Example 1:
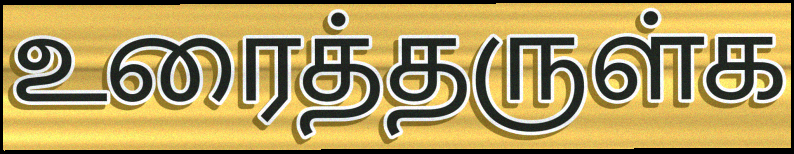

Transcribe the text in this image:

உரைத்தருள்க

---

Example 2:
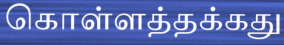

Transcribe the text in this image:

கொள்ளத்தக்கது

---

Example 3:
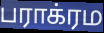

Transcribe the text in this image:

பராக்ரம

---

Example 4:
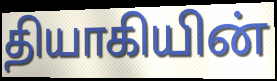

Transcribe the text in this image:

தியாகியின்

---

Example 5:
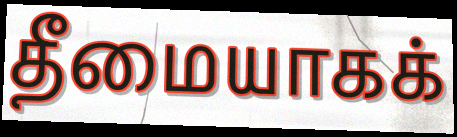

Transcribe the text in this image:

தீமையாகக்